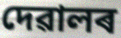
দেৱালৰ